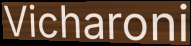
Vicharoni